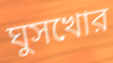
ঘুসখোর